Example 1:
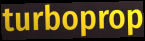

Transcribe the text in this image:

turboprop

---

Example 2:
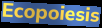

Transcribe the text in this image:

Ecopoiesis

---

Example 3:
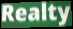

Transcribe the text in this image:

Realty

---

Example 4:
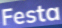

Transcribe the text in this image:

Festa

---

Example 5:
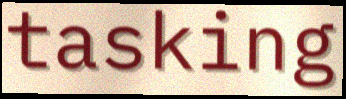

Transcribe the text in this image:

tasking